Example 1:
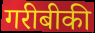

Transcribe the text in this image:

गरीबीकी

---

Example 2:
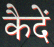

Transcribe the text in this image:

कैदें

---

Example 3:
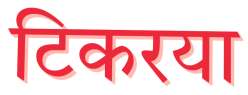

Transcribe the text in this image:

टिकरया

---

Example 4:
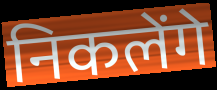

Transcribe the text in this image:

निकलेंगे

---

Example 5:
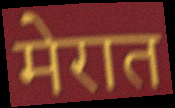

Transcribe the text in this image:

मेरात